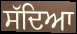
ਸੱਦਿਆ